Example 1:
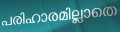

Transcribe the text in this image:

പരിഹാരമില്ലാതെ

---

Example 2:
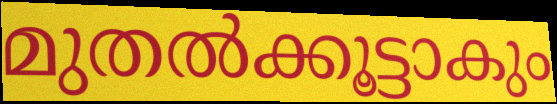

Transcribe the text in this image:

മുതൽക്കൂട്ടാകും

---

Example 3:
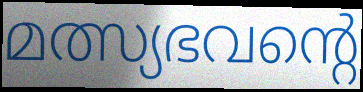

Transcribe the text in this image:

മത്സ്യഭവന്റെ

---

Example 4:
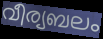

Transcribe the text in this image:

വീര്യബലം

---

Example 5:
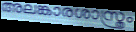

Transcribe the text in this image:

അലങ്കാരശാസ്ത്രം